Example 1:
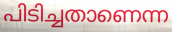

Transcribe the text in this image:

പിടിച്ചതാണെന്ന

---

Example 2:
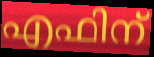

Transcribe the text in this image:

എഫിന്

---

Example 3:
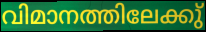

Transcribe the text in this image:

വിമാനത്തിലേക്കു്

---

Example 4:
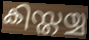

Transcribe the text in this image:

കിസ്തയ്യ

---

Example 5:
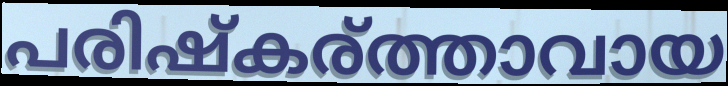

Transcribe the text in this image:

പരിഷ്കര്ത്താവായ